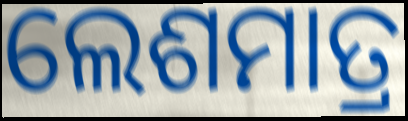
ଲେଶମାତ୍ର